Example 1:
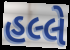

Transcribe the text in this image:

હલ્લે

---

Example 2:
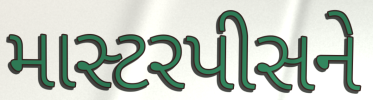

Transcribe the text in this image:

માસ્ટરપીસને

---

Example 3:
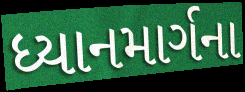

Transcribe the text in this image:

ધ્યાનમાર્ગના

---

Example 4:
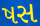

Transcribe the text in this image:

ષસ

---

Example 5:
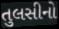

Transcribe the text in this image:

તુલસીનો